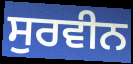
ਸੁਰਵੀਨ